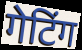
गेटिंग